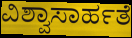
ವಿಶ್ವಾಸಾರ್ಹತೆ